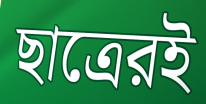
ছাত্রেরই